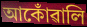
আকোঁৱালি